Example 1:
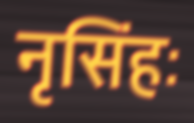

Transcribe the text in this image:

नृसिंहः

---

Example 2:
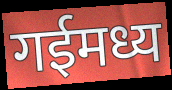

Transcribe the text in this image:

गईमध्य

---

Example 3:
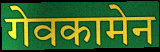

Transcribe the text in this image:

गेवकामेन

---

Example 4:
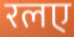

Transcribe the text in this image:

रलए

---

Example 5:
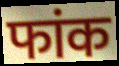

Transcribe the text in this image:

फांक